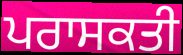
ਪਰਾਸਕਤੀ